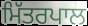
ਮਿੱਤਰਪਾਲ